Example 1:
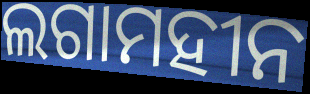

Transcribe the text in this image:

ଲଗାମହୀନ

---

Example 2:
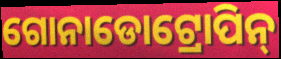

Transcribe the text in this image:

ଗୋନାଡୋଟ୍ରୋପିନ୍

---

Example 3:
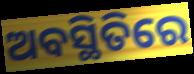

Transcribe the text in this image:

ଅବସ୍ଥିତିରେ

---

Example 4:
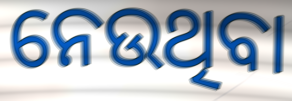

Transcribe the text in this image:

ନେଉଥିବା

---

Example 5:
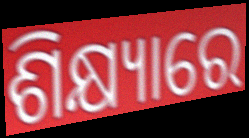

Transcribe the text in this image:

ଶିକ୍ଷ୍ୟାରେ